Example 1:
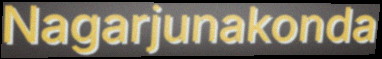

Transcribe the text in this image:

Nagarjunakonda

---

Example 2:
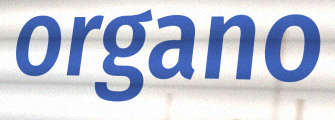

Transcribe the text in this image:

organo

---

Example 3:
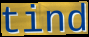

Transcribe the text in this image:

tind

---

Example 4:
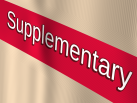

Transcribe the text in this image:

Supplementary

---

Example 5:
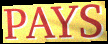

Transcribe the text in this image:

PAYS